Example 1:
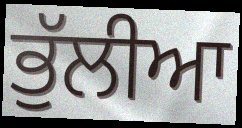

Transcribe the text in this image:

ਭੁੱਲੀਆ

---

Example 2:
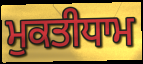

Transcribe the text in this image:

ਮੁਕਤੀਧਾਮ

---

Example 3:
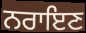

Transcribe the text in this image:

ਨਰਾਇਣ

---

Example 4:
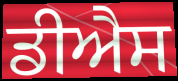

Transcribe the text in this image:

ਡੀਐਸ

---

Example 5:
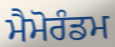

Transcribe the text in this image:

ਮੈਮੋਰੰਡਮ